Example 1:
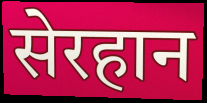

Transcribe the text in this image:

सेरहान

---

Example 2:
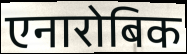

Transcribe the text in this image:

एनारोबिक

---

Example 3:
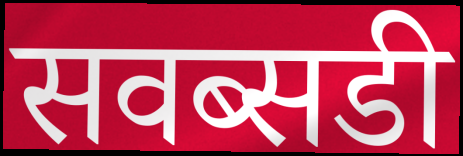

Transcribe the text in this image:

सवब्सडी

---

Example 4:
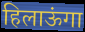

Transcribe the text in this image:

हिलाऊंगा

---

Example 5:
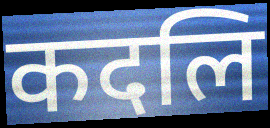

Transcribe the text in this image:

कदलि